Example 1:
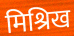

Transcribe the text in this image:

मिश्रिख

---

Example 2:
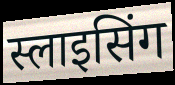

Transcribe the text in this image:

स्लाइसिंग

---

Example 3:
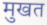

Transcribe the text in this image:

मुखत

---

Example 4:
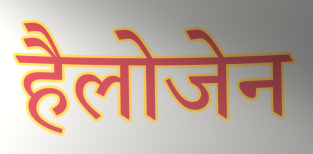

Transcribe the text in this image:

हैलोजेन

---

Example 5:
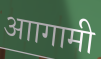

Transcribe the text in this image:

आागामी